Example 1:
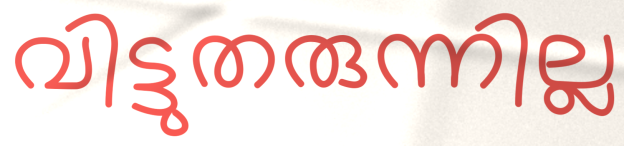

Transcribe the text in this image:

വിട്ടുതരുന്നില്ല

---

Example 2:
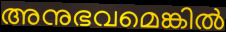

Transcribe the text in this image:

അനുഭവമെങ്കിൽ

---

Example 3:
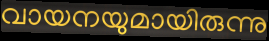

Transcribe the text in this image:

വായനയുമായിരുന്നു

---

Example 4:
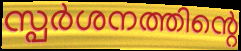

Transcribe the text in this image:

സ്പർശനത്തിന്റെ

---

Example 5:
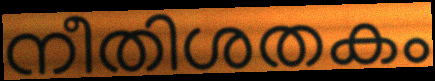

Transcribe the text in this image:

നീതിശതകം